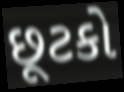
છૂટકો